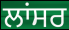
ਲਾਂਸਰ